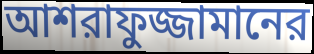
আশরাফুজ্জামানের